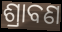
ଶ୍ରାବଣ